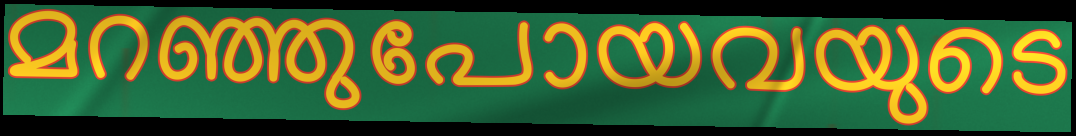
മറഞ്ഞുപോയവയുടെ